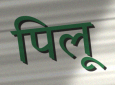
पिलू